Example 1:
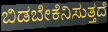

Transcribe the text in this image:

ಬಿಡಬೇಕೆನಿಸುತ್ತದೆ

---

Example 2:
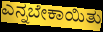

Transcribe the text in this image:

ಎನ್ನಬೇಕಾಯಿತು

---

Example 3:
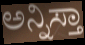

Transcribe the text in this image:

ಅನ್ನಿಸ್ತಾ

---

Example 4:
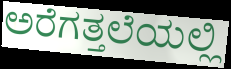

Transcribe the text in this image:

ಅರೆಗತ್ತಲೆಯಲ್ಲಿ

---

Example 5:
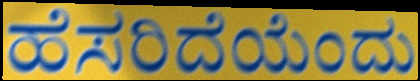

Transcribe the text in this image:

ಹೆಸರಿದೆಯೆಂದು